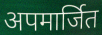
अपमार्जित